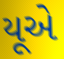
યૂએ